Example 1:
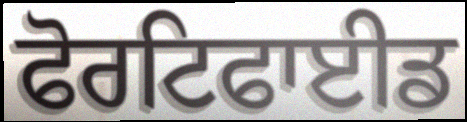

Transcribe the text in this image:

ਫੋਰਟਿਫਾਈਡ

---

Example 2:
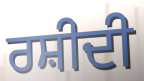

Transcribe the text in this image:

ਰਸ਼ੀਦੀ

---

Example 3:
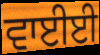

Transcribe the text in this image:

ਵਾਈਈ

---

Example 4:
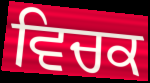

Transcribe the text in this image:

ਵਿਚਕ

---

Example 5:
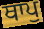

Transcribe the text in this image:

ਥਾਪੁ